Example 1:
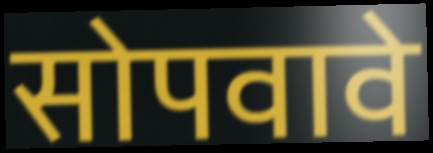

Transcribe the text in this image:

सोपवावे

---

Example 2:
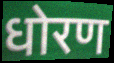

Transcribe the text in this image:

धोरण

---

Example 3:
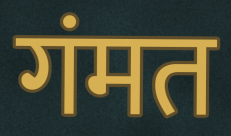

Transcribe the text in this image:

गंमत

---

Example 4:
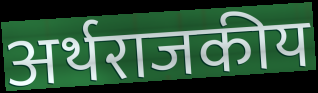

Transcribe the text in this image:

अर्थराजकीय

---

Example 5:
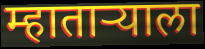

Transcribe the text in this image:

म्हाताऱ्याला